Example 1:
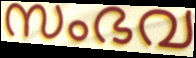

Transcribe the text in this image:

സംഭവ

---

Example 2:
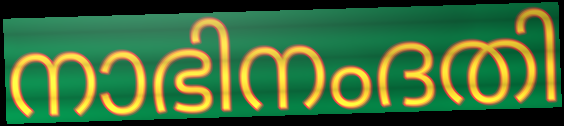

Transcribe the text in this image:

നാഭിനംദതി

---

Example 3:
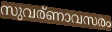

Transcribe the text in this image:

സുവര്ണാവസരം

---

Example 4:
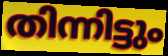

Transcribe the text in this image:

തിന്നിട്ടും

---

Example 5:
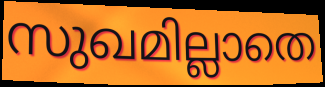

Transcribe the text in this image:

സുഖമില്ലാതെ